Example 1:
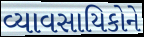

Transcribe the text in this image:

વ્યાવસાયિકોને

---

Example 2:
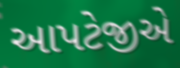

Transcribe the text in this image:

આપટેજીએ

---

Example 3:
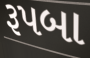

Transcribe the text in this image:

રૂપબા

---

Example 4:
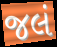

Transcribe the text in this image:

જલં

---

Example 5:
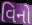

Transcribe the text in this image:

વિનો